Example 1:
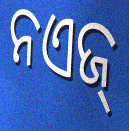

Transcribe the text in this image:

ନଏଜ୍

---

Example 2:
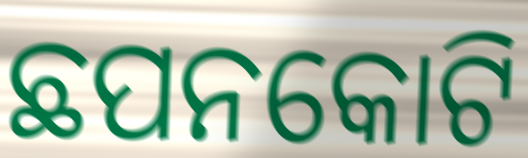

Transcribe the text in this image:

ଛପନକୋଟି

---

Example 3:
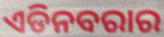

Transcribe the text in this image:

ଏଡିନବରାର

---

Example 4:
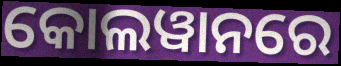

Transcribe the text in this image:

କୋଲୱାନରେ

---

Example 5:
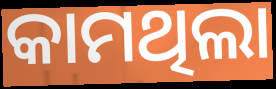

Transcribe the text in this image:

କାମଥିଲା